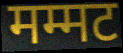
मम्मट